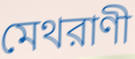
মেথরাণী